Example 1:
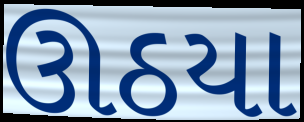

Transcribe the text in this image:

ઊઠયા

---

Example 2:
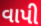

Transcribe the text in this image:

વાપી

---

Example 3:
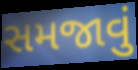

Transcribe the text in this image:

સમજાવું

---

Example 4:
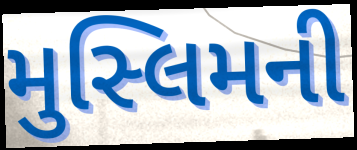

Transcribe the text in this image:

મુસ્લિમની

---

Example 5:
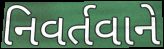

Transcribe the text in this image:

નિવર્તવાને